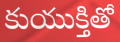
కుయుక్తితో